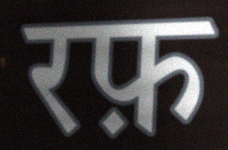
रफ़